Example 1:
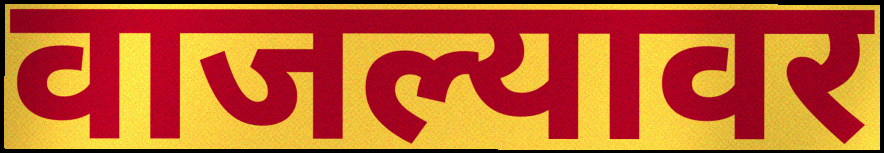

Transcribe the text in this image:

वाजल्यावर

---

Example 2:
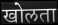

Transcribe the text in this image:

खोलता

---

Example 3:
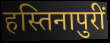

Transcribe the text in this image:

हस्तिनापुरीं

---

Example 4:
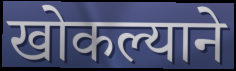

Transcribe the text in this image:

खोकल्याने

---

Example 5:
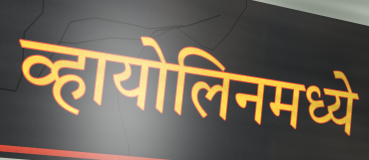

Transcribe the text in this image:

व्हायोलिनमध्ये